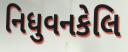
નિધુવનકેલિ